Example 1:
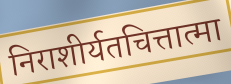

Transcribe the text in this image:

निराशीर्यतचित्तात्मा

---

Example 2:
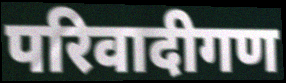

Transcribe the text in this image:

परिवादीगण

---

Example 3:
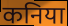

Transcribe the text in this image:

कनिया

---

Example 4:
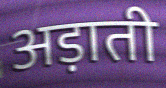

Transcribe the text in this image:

अड़ाती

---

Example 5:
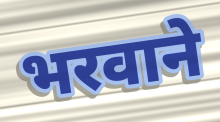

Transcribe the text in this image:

भरवाने